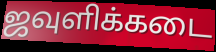
ஜவுளிக்கடை